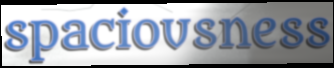
spaciousness